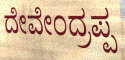
ದೇವೇಂದ್ರಪ್ಪ